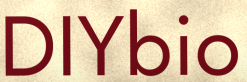
DIYbio